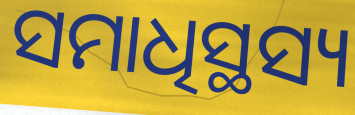
ସମାଧିସ୍ଥସ୍ୟ